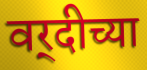
वर्दीच्या